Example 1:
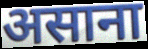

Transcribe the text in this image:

असाना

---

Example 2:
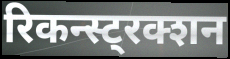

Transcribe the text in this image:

रिकन्स्ट्रक्शन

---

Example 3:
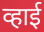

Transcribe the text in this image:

व्हाई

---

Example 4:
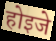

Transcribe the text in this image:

होइजे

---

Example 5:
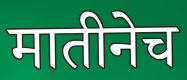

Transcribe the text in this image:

मातीनेच